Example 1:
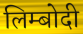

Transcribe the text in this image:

लिम्बोदी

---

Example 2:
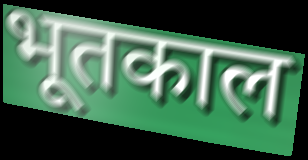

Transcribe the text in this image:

भूतकाल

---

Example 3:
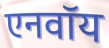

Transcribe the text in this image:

एनवॉय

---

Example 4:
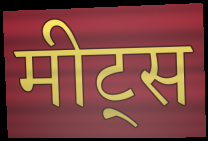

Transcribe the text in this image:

मीट्स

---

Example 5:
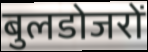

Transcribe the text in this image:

बुलडोजरों